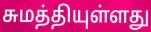
சுமத்தியுள்ளது